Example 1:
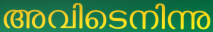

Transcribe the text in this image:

അവിടെനിന്നു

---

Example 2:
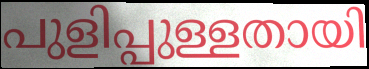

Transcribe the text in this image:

പുളിപ്പുള്ളതായി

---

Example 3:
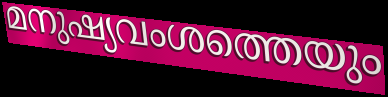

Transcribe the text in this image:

മനുഷ്യവംശത്തെയും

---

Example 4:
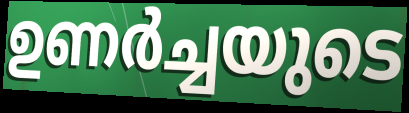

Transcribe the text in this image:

ഉണർച്ചയുടെ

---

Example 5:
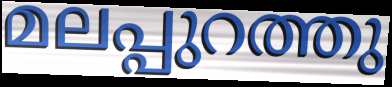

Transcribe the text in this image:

മലപ്പുറത്തു